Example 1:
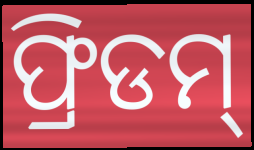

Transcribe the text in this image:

ଫ୍ରିଡମ୍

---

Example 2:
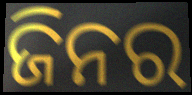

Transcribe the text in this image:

ଜିନର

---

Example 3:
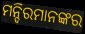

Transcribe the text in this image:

ମନ୍ଦିରମାନଙ୍କର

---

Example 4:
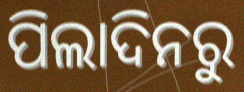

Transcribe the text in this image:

ପିଲାଦିନରୁ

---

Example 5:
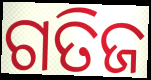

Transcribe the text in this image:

ଗତିଜ